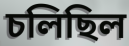
চলিছিল